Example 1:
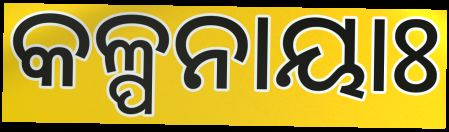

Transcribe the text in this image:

କଳ୍ପନାୟାଃ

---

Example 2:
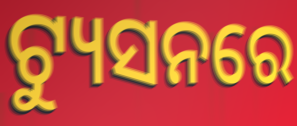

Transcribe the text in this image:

ଟ୍ୟୁସନରେ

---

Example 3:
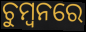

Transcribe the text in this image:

ଚୁମ୍ବନରେ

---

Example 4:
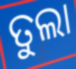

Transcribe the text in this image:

ତୁଲା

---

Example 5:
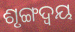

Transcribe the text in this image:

ଶୃଙ୍ଗଦ୍ୱୟ